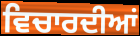
ਵਿਚਾਰਦੀਆਂ